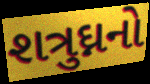
શત્રુઘ્નનો